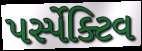
પર્સ્પેક્ટિવ